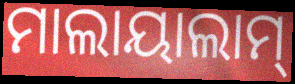
ମାଲାୟାଲାମ୍